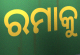
ରମାକୁ